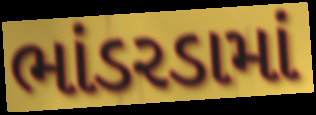
ભાંડરડામાં